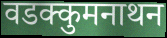
वडक्कुमनाथन